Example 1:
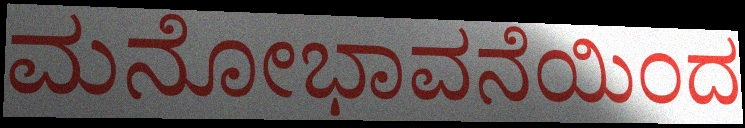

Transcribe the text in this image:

ಮನೋಭಾವನೆಯಿಂದ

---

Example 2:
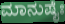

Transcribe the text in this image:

ಮಾನುಷೈಃ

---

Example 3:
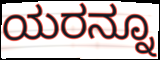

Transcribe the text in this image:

ಯರನ್ನೂ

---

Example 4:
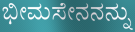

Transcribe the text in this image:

ಭೀಮಸೇನನನ್ನು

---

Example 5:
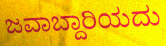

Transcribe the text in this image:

ಜವಾಬ್ದಾರಿಯದು